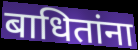
बाधितांना